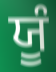
ਯੂੰ